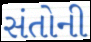
સંતોની